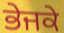
ਭੇਜਕੇ